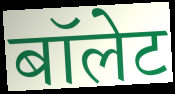
बॉलेट